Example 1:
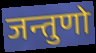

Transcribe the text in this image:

जन्तुणो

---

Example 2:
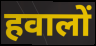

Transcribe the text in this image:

हवालों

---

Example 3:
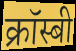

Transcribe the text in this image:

क्रॉस्बी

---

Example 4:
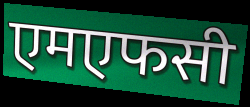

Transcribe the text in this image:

एमएफसी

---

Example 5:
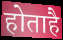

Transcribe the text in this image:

होताहै